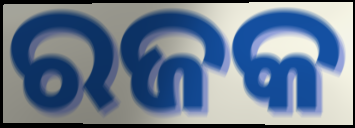
ରଜକ